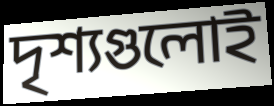
দৃশ্যগুলোই